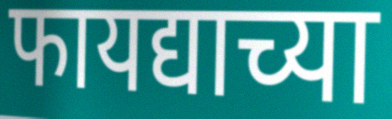
फायद्याच्या